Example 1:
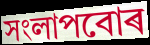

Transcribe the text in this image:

সংলাপবোৰ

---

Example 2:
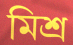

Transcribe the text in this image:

মিশ্ৰ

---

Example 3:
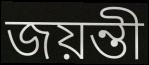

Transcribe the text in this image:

জয়ন্তী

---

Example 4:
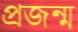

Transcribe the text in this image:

প্ৰজন্ম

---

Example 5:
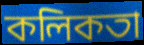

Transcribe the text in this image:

কলিকতা